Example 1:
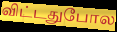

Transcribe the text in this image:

விட்டதுபோல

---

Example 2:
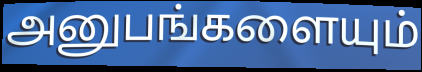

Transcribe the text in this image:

அனுபங்களையும்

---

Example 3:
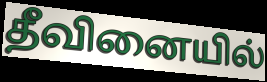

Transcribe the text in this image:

தீவினையில்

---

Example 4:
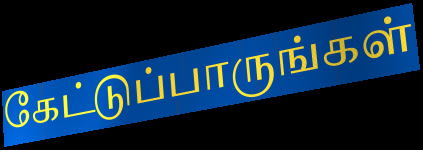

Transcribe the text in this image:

கேட்டுப்பாருங்கள்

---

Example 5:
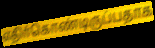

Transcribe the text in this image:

எதிர்கொண்டிருப்பதாக